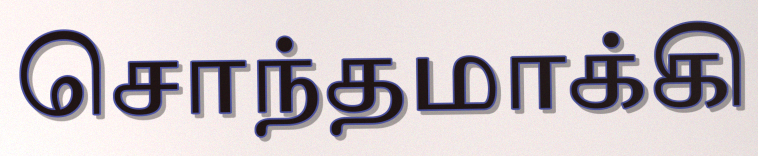
சொந்தமாக்கி